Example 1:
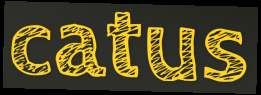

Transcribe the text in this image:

catus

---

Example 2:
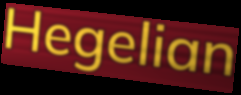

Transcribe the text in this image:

Hegelian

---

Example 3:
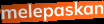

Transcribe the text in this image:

melepaskan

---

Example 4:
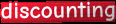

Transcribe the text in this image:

discounting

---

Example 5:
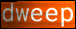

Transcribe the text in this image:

dweep